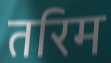
तरिम